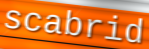
scabrid